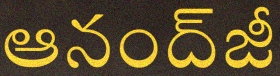
ఆనంద్‌జీ